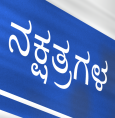
ನಕ್ಷತ್ರಗಳ